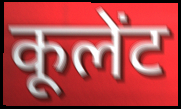
कूलेंट